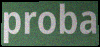
proba